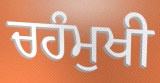
ਚਹੰਮੁਖੀ